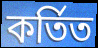
কৰ্তিত